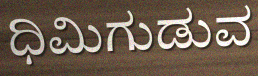
ಧಿಮಿಗುಡುವ